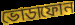
ভোডাফোন